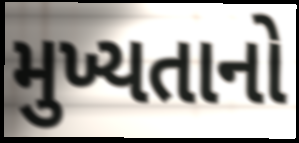
મુખ્યતાનો